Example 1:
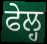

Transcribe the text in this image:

ਫੇਲ੍ਹ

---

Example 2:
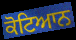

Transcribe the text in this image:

ਕੋਟਿਆਨ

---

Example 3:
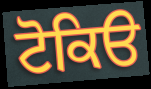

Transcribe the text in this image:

ਟੋਕਿੳ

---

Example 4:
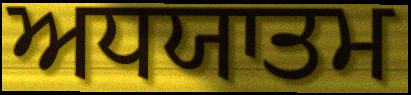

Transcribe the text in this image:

ਅਧਯਾਤਮ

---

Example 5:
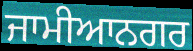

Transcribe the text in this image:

ਜਾਮੀਆਨਗਰ